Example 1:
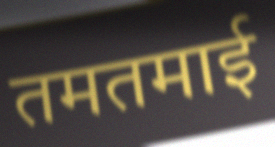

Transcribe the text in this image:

तमतमाई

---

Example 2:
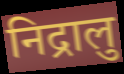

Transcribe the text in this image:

निद्रालु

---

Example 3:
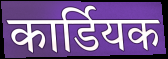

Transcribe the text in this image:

कार्डियक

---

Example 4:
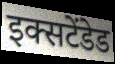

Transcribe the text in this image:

इक्सटेंडेड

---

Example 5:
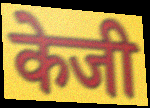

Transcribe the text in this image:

केजी